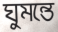
ঘুমন্তে